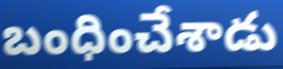
బంధించేశాడు